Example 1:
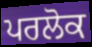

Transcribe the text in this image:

ਪਰਲੋਕ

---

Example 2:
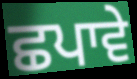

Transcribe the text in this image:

ਛਪਾਵੇ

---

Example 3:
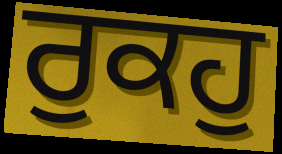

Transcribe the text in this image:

ਰੁਕਹੁ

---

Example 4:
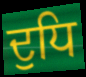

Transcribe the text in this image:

ਦੁਧਿ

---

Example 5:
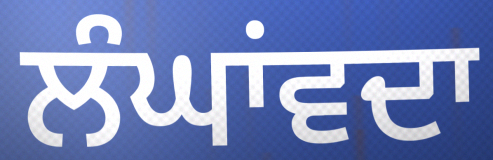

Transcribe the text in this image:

ਲੰਘਾਂਵਦਾ